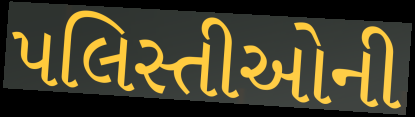
પલિસ્તીઓની